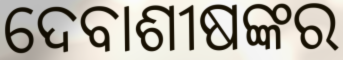
ଦେବାଶୀଷଙ୍କର